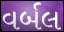
વર્બલ